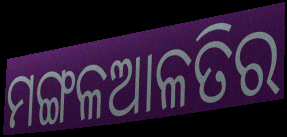
ମଙ୍ଗଳଆଳତିର